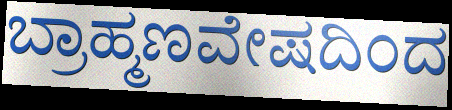
ಬ್ರಾಹ್ಮಣವೇಷದಿಂದ